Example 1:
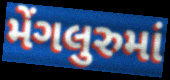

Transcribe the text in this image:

મેંગલુરુમાં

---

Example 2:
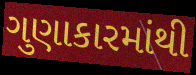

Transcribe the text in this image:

ગુણાકારમાંથી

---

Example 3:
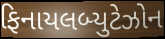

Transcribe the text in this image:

ફિનાયલબ્યુટેઝોન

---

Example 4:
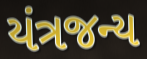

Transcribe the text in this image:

યંત્રજન્ય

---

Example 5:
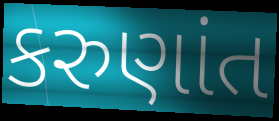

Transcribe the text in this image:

કરુણાંત